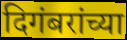
दिगंबरांच्या